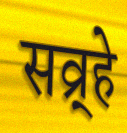
सव्र्हे